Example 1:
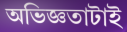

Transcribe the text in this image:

অভিজ্ঞতাটাই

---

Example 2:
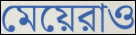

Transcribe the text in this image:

মেয়েরাও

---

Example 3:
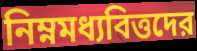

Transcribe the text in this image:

নিম্নমধ্যবিত্তদের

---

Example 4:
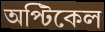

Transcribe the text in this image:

অপ্টিকেল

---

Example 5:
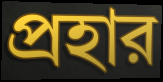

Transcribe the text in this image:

প্রহার